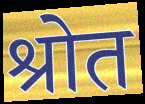
श्रोत